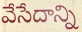
వేసేదాన్ని